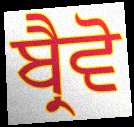
ਬ੍ਰੈਵੋ